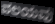
ವಲಯವು